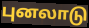
புனலாடு